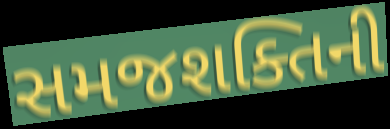
સમજશક્તિની